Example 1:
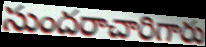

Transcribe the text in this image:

సుందరాచారిగారు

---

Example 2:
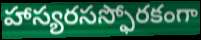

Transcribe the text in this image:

హాస్యరసస్ఫోరకంగా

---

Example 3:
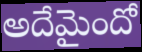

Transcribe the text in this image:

అదేమైందో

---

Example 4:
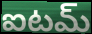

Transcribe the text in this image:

ఐటమ్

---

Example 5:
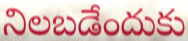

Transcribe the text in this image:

నిలబడేందుకు